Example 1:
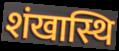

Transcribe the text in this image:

शंखास्थि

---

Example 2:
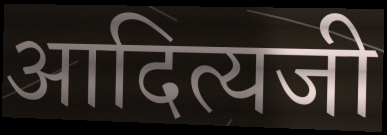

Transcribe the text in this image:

आदित्यजी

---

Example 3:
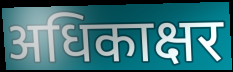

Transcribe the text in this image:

अधिकाक्षर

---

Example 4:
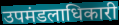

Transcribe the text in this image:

उपमंडलाधिकारी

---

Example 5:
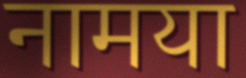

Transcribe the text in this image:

नामया